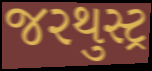
જરથુસ્ટ્ર